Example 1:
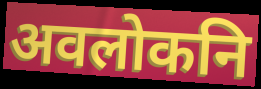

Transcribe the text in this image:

अवलोकनि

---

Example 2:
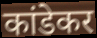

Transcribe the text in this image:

कांडेकर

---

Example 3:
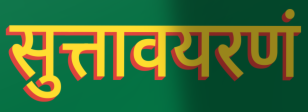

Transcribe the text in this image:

सुत्तावयरणं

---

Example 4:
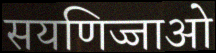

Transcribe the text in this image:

सयणिज्जाओ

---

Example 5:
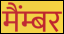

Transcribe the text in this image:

मैंम्बर